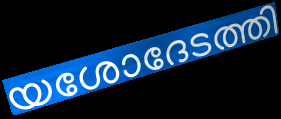
യശോദേടത്തി